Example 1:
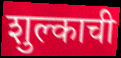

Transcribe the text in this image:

शुल्काची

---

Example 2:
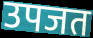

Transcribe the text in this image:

उपजत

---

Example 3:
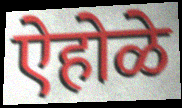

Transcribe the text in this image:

ऐहोळे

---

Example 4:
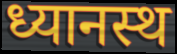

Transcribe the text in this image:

ध्यानस्थ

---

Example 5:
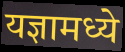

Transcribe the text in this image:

यज्ञामध्ये